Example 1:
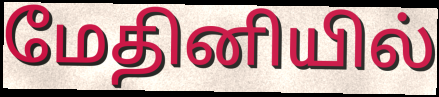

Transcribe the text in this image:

மேதினியில்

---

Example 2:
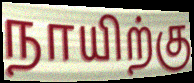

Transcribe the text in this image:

நாயிற்கு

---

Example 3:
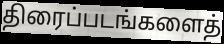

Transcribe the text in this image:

திரைப்படங்களைத்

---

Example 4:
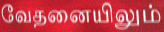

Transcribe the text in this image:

வேதனையிலும்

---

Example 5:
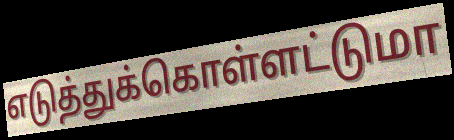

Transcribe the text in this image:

எடுத்துக்கொள்ளட்டுமா